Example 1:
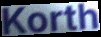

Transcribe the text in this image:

Korth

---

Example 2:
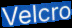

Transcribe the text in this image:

Velcro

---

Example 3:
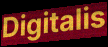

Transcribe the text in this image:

Digitalis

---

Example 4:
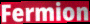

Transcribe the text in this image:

Fermion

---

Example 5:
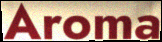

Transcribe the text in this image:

Aroma